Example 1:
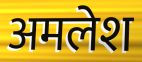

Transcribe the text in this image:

अमलेश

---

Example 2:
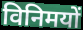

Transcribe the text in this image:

विनिमयों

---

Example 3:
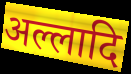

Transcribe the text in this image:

अल्लादि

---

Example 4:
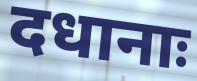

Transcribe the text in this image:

दधानाः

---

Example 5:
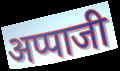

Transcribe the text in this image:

अप्पाजी